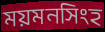
ময়মনসিংহ